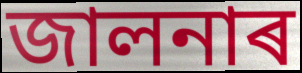
জালনাৰ